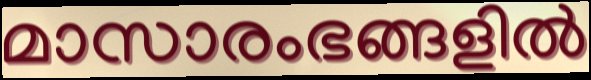
മാസാരംഭങ്ങളിൽ